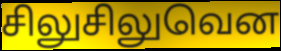
சிலுசிலுவென